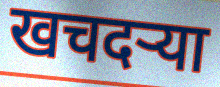
खचदऱ्या